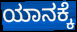
ಯಾನಕ್ಕೆ